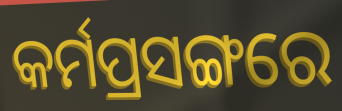
କର୍ମପ୍ରସଙ୍ଗରେ